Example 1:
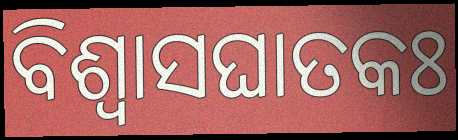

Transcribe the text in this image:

ବିଶ୍ୱାସଘାତକଃ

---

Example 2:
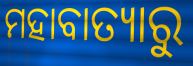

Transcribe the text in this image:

ମହାବାତ୍ୟାରୁ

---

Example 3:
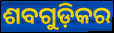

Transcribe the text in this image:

ଶବଗୁଡ଼ିକର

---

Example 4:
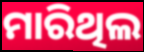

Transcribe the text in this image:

ମାରିଥିଲ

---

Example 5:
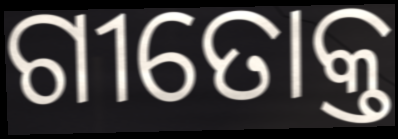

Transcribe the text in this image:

ଗୀତୋକ୍ତ